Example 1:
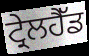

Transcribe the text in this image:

ਟ੍ਰੇਲਹੈੱਡ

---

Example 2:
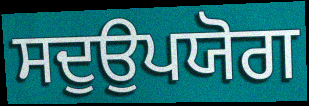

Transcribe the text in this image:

ਸਦੁਉਪਯੋਗ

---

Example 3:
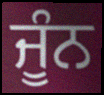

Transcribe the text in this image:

ਜੂੰਨ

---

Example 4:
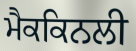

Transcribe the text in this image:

ਮੈਕਕਿਨਲੀ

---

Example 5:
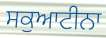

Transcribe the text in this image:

ਸਕੁਆਟੀਨਾ